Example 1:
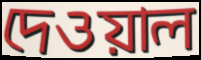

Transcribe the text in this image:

দেওয়াল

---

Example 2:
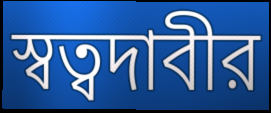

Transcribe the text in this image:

স্বত্বদাবীর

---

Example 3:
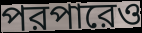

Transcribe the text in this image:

পরপারেও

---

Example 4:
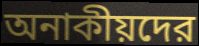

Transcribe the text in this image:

অনাকীয়দের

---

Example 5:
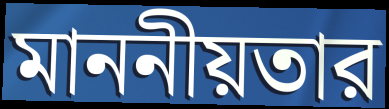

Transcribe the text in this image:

মাননীয়তার